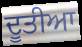
ਦੂਤੀਆ